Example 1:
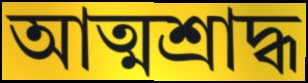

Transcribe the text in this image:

আত্মশ্রাদ্ধ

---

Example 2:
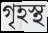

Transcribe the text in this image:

গৃহস্থ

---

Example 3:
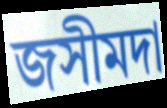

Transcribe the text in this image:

জসীমদা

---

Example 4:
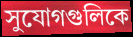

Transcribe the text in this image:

সুযোগগুলিকে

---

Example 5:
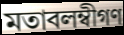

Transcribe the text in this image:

মতাবলম্বীগণ